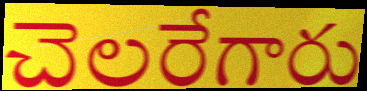
చెలరేగారు